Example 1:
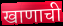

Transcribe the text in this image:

खाणाची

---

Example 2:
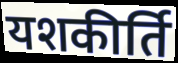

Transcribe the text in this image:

यशकीर्ति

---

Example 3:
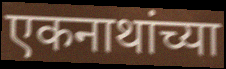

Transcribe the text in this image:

एकनाथांच्या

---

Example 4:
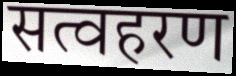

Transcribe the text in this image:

सत्वहरण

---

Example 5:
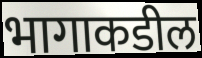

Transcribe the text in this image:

भागाकडील